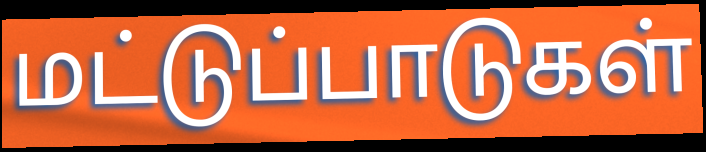
மட்டுப்பாடுகள்